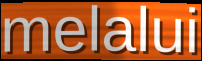
melalui